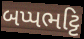
બપ્પભટ્ટિ